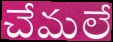
చేమలే